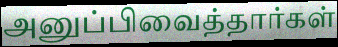
அனுப்பிவைத்தார்கள்